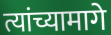
त्यांच्यामागे